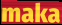
maka